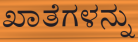
ಖಾತೆಗಳನ್ನು